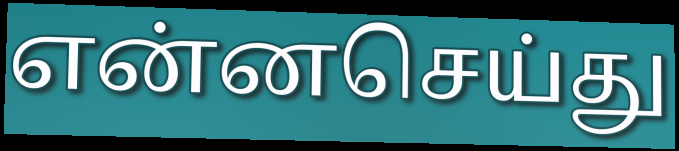
என்னசெய்து